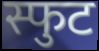
स्फुट